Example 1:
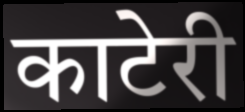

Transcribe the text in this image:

काटेरी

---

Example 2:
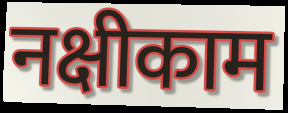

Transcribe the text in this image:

नक्षीकाम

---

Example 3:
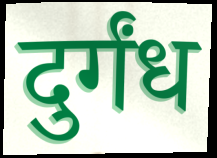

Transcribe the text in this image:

दुर्गंध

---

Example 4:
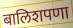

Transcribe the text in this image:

बालिशपणा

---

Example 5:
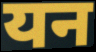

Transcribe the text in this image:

यन